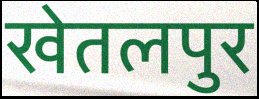
खेतलपुर